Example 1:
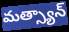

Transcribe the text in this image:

మత్స్యాన్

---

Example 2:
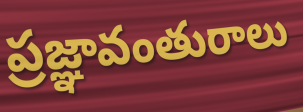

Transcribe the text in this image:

ప్రజ్ఞావంతురాలు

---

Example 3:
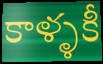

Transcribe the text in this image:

కాళ్ళకీ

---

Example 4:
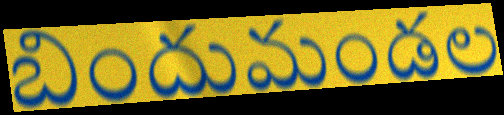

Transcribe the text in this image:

బిందుమండల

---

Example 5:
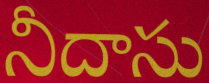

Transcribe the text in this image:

నీదాసు